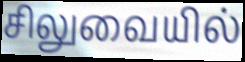
சிலுவையில்